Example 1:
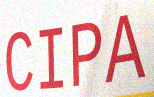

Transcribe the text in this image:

CIPA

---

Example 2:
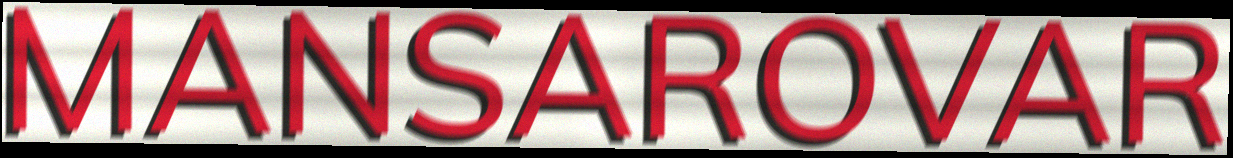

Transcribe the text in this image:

MANSAROVAR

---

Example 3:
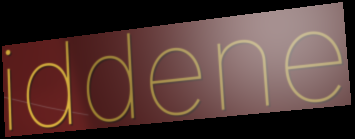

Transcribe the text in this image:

iddene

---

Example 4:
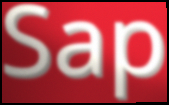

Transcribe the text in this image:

Sap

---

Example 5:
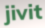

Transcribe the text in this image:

jivit